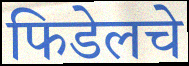
फिडेलचे